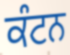
ਕੰਟਨ